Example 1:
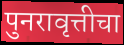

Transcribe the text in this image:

पुनरावृत्तीचा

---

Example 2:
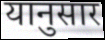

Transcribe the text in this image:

यानुसार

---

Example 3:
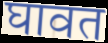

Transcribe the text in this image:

घावत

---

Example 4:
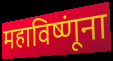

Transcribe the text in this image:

महाविष्णूंना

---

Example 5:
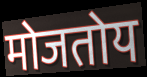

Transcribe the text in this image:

मोजतोय